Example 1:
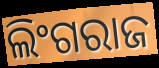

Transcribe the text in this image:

ଲିଂଗରାଜ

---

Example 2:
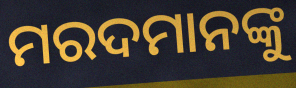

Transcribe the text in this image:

ମରଦମାନଙ୍କୁ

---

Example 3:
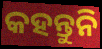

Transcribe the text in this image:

କହନ୍ତୁନି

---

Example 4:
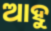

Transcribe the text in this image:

ଆହୁ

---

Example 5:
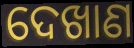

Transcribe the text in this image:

ଦେଖାଣ